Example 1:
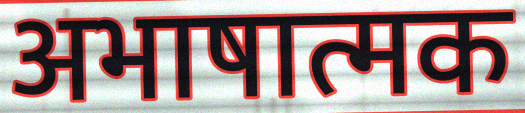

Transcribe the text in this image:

अभाषात्मक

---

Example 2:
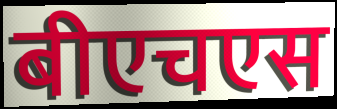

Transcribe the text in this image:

बीएचएस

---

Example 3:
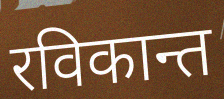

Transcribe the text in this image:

रविकान्त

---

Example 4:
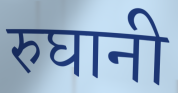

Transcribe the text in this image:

रुघानी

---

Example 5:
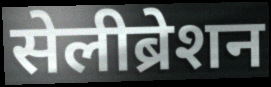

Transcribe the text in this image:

सेलीब्रेशन